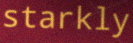
starkly